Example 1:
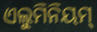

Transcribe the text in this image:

ଏଲୁମିନିୟମ୍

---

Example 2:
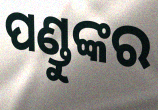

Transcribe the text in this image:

ପଣ୍ଡୁଙ୍କର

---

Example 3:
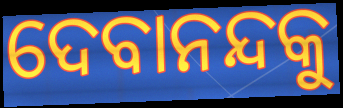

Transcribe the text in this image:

ଦେବାନନ୍ଦକୁ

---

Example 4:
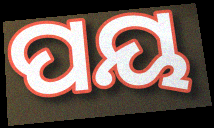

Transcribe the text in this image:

ପୟ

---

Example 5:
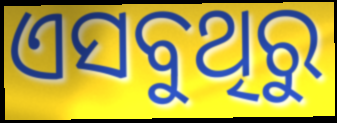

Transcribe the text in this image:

ଏସବୁଥିରୁ